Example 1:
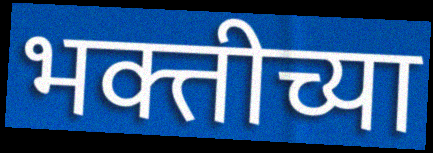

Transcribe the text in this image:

भक्तीच्या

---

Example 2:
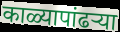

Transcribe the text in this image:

काळ्यापांढऱ्या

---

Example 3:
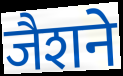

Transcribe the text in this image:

जैशने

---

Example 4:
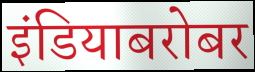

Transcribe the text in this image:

इंडियाबरोबर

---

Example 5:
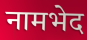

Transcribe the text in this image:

नामभेद